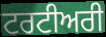
ਟਰਟੀਅਰੀ